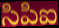
సిపిఐ